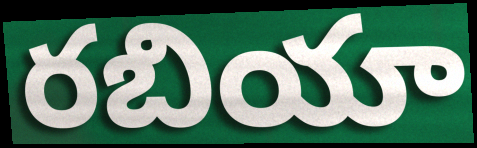
రబియా